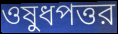
ওষুধপত্তর